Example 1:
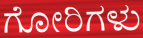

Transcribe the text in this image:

ಗೋರಿಗಳು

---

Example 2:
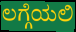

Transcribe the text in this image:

ಲಗ್ಗೆಯಲಿ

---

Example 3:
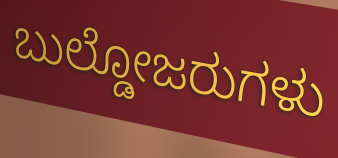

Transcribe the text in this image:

ಬುಲ್ಡೋಜರುಗಳು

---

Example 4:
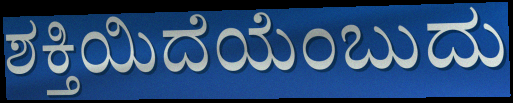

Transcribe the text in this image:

ಶಕ್ತಿಯಿದೆಯೆಂಬುದು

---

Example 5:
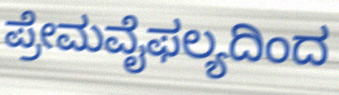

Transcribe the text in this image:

ಪ್ರೇಮವೈಫಲ್ಯದಿಂದ